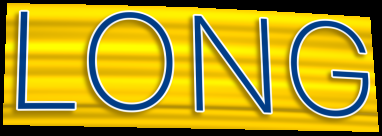
LONG